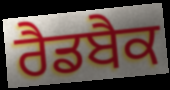
ਰੈਡਬੈਕ